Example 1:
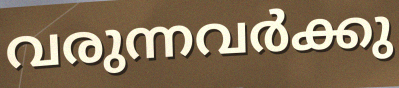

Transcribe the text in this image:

വരുന്നവർക്കു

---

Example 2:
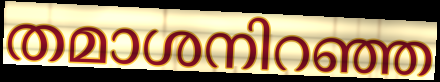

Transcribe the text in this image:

തമാശനിറഞ്ഞ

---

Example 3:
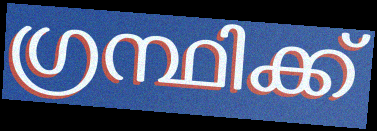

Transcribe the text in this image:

ഗ്രന്ഥിക്ക്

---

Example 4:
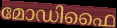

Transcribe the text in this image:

മോഡിഫൈ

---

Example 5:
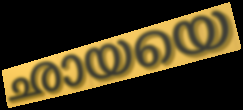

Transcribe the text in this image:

ഛായയെ